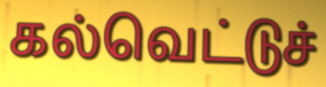
கல்வெட்டுச்